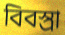
বিবস্ত্রা